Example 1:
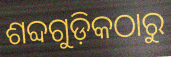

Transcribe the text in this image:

ଶବ୍ଦଗୁଡ଼ିକଠାରୁ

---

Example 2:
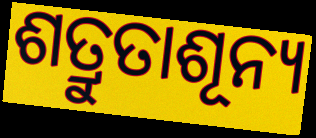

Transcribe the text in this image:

ଶତ୍ରୁତାଶୂନ୍ୟ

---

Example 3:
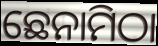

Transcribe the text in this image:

ଛେନାମିଠା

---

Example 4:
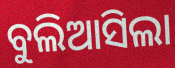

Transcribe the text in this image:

ବୁଲିଆସିଲା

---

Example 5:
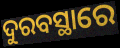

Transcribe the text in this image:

ଦୁରବସ୍ଥାରେ